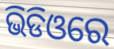
ଭିଡିଓରେ